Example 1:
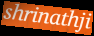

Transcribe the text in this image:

shrinathji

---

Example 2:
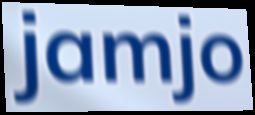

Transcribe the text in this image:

jamjo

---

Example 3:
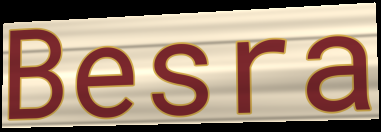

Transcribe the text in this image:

Besra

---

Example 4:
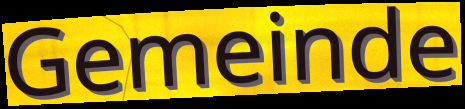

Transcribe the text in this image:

Gemeinde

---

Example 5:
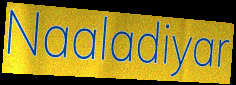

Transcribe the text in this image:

Naaladiyar